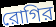
রোগির